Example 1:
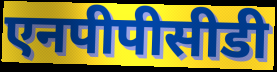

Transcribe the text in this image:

एनपीपीसीडी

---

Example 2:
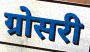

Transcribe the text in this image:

ग्रोसरी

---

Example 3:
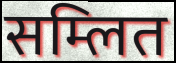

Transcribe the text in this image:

सम्लित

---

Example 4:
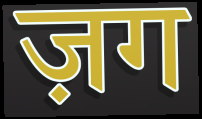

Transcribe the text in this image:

ज़ग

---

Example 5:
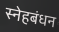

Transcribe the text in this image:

स्नेहबंधन